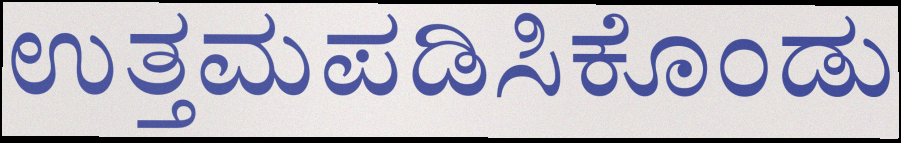
ಉತ್ತಮಪಡಿಸಿಕೊಂಡು